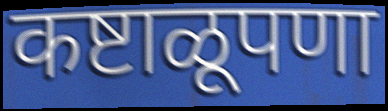
कष्टाळूपणा